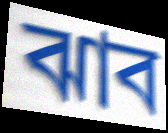
ঝাব